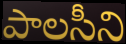
పాలసీని